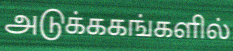
அடுக்ககங்களில்